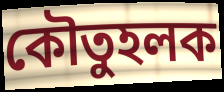
কৌতুহলক